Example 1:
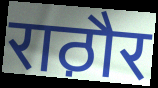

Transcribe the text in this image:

राठ़ौर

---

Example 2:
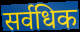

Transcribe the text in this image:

सर्वधिक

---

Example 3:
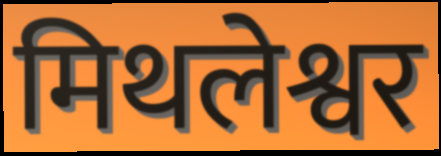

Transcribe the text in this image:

मिथलेश्वर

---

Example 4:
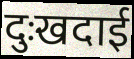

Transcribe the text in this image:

दुःखदाई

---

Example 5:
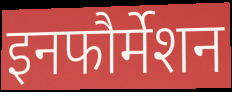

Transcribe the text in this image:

इनफौर्मेशन